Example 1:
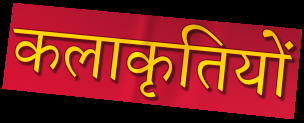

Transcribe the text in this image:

कलाकृतियों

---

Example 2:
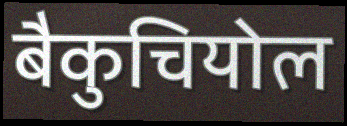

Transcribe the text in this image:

बैकुचियोल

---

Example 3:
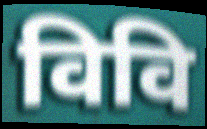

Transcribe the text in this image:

विवि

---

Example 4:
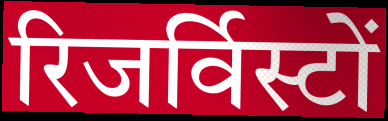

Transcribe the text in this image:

रिजर्विस्टों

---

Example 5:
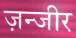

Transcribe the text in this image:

ज़न्जीर